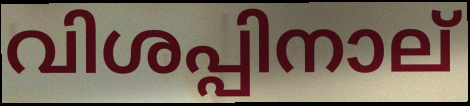
വിശപ്പിനാല്